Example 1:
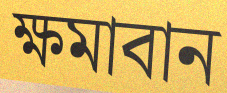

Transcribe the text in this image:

ক্ষমাবান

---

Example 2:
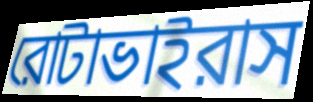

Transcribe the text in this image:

রোটাভাইরাস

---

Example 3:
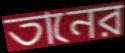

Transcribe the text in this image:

তানের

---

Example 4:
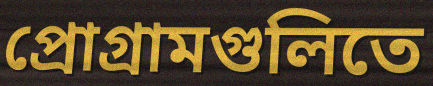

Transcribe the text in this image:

প্রোগ্রামগুলিতে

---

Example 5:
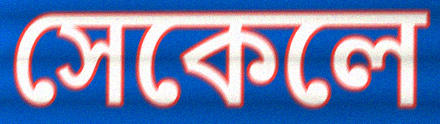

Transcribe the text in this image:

সেকেলে